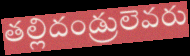
తల్లిదండ్రులెవరు